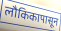
लौकिकापासून